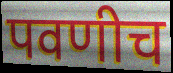
पवणीच